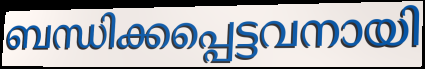
ബന്ധിക്കപ്പെട്ടവനായി